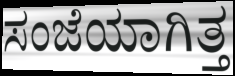
ಸಂಜೆಯಾಗಿತ್ತ